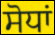
ਸੋਧਾਂ